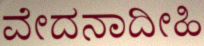
ವೇದನಾದೀಹಿ